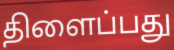
திளைப்பது